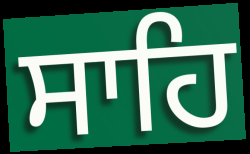
ਸਾਹਿ